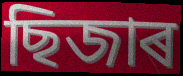
ছিজাৰ